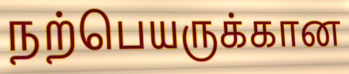
நற்பெயருக்கான